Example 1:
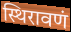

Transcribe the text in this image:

स्थिरावणं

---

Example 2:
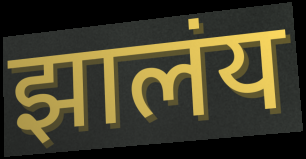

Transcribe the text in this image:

झालंय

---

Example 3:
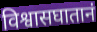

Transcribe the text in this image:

विश्वासघातानं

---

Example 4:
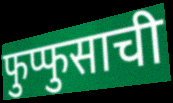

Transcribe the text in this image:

फुप्फुसाची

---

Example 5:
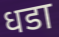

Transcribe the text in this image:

धडा